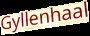
Gyllenhaal